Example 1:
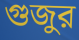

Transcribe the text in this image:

গুজুর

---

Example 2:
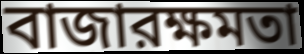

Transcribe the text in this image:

বাজারক্ষমতা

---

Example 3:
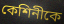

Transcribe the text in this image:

কেশিনীকে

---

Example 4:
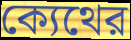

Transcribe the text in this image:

ক্যেথের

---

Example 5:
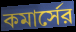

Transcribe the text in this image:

কমার্সের